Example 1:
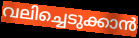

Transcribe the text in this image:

വലിച്ചെടുക്കാൻ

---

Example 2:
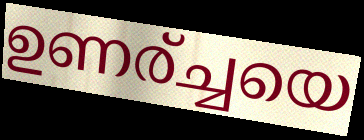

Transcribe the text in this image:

ഉണര്ച്ചയെ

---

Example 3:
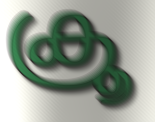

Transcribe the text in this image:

ക്രൂ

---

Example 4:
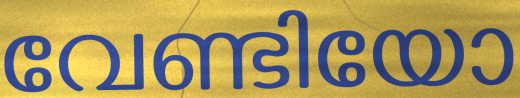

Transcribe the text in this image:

വേണ്ടിയോ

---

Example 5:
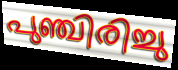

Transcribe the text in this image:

പുഞ്ചിരിച്ചു